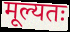
मूल्यतः